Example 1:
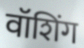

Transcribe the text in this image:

वॉशिंग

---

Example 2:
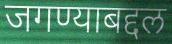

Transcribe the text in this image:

जगण्याबद्दल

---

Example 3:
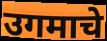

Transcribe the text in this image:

उगमाचे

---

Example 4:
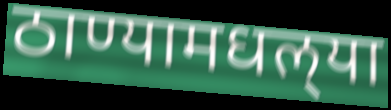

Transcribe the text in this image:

ठाण्यामधल्या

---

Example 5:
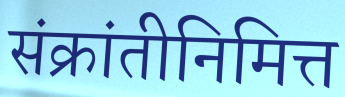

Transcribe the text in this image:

संक्रांतीनिमित्त